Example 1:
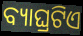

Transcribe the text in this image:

ବ୍ୟାଘ୍ରଟିଏ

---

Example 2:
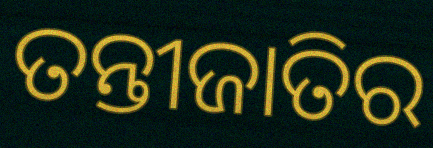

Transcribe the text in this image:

ତନ୍ତୀଜାତିର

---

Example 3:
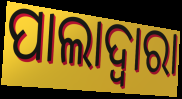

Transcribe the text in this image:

ପାଲାଦ୍ୱାରା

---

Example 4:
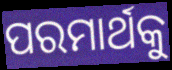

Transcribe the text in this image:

ପରମାର୍ଥକୁ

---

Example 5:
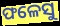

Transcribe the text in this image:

ଫଳେସୁ